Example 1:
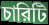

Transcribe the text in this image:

চারিটি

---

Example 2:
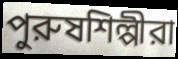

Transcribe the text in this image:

পুরুষশিল্পীরা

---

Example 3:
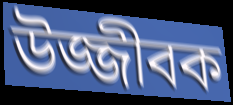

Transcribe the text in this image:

উজ্জীবক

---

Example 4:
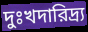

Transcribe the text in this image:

দুঃখদারিদ্র্য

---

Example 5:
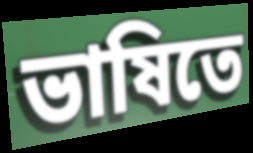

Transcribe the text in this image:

ভাষিতে